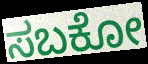
ಸಬಕೋ